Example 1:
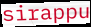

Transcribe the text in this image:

sirappu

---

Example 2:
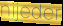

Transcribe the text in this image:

nijeder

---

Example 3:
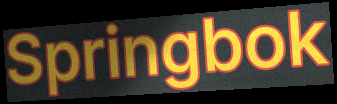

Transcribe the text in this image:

Springbok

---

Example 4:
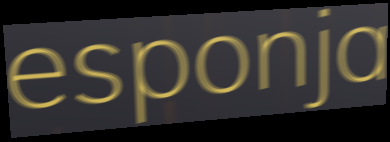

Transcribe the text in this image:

esponja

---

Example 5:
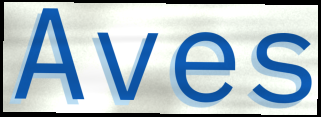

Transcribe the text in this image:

Aves